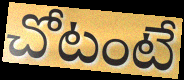
చోటంటే